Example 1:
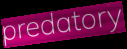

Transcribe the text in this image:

predatory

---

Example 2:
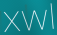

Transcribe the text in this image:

xwl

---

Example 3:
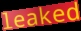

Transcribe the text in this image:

leaked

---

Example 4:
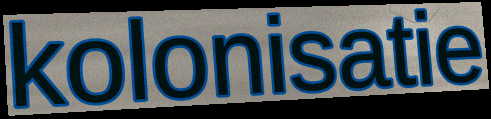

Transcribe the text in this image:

kolonisatie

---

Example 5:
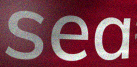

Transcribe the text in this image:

sea